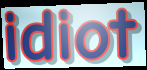
idiot